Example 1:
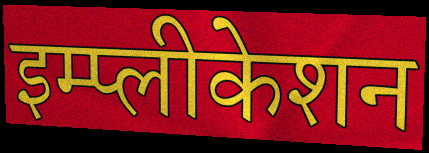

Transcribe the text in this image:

इम्प्लीकेशन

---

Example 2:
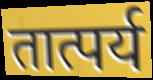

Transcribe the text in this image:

तात्पर्य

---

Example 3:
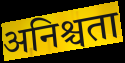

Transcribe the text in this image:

अनिश्चता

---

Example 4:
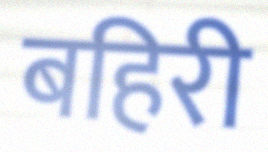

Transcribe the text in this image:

बहिरी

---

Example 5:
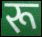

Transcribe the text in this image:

रू